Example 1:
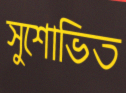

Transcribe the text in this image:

সুশোভিত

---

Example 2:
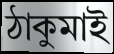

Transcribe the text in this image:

ঠাকুমাই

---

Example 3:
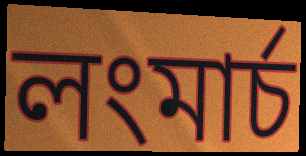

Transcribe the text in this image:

লংমার্চ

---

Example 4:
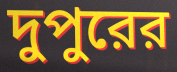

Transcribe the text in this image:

দুপুরের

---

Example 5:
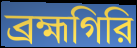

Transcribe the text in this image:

ব্রহ্মগিরি